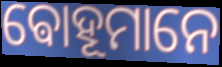
ଵୋହୂମାନେ